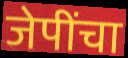
जेपींचा